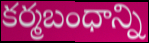
కర్మబంధాన్ని